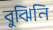
বুঝিনি